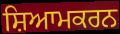
ਸ਼ਿਆਮਕਰਨ